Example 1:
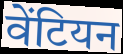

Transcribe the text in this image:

वेंटियन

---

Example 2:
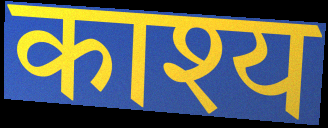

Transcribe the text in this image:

काश्य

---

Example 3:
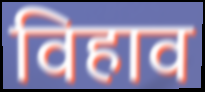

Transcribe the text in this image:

विहाव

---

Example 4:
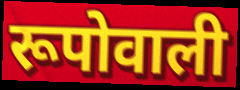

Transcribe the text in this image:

रूपोवाली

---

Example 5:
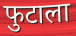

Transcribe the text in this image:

फुटाला